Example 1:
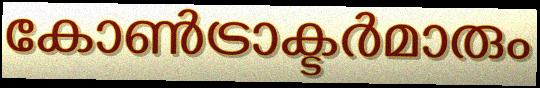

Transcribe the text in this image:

കോൺട്രാക്ടർമാരും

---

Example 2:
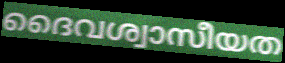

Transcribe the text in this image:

ദൈവശ്വാസീയത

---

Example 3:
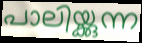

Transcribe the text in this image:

പാലിയ്ക്കുന്ന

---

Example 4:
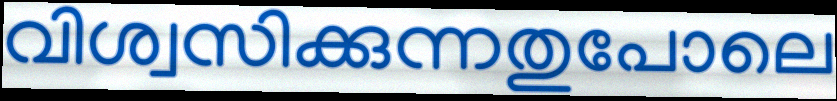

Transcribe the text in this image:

വിശ്വസിക്കുന്നതുപോലെ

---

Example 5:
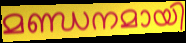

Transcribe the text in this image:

മണ്ഡനമായി